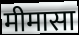
मीमासा